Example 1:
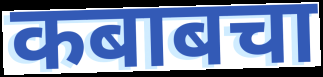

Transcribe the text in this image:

कबाबचा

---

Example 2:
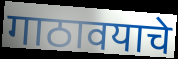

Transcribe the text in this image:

गाठावयाचे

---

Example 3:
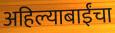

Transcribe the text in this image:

अहिल्याबाईंचा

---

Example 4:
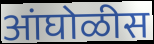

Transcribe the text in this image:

आंघोळीस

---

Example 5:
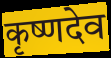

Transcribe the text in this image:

कृष्णदेव